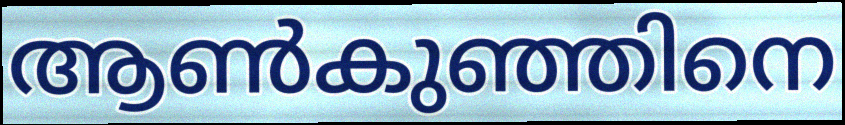
ആൺകുഞ്ഞിനെ